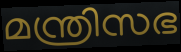
മന്ത്രിസഭ